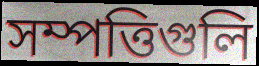
সম্পত্তিগুলি